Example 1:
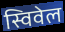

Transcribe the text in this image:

स्विवेल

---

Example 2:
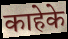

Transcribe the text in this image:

काहेके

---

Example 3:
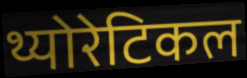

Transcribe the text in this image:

थ्योरेटिकल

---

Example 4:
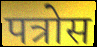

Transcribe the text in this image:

पत्रोस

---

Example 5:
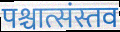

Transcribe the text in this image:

पश्चात्संस्तव